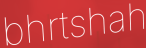
bhrtshah